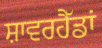
ਸ਼ਾਵਰਹੈੱਡਾਂ